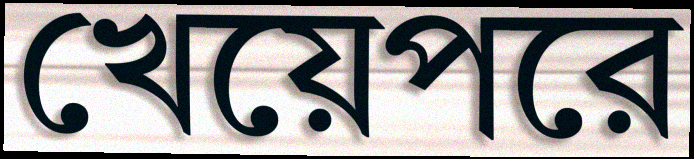
খেয়েপরে